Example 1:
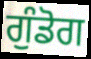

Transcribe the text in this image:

ਗੁੰਡੋਗ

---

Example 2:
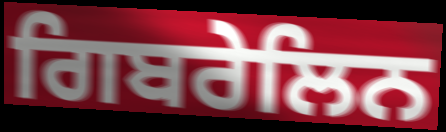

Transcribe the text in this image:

ਗਿਬਰੇਲਿਨ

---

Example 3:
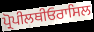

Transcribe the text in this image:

ਪ੍ਰੋਪੀਲਥੀਓਰਾਸਿਲ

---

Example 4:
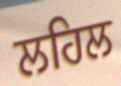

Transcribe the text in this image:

ਲਹਿਲ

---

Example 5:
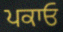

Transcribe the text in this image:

ਪਕਾਓ